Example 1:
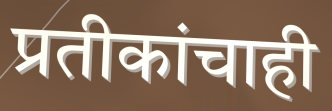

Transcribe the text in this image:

प्रतीकांचाही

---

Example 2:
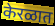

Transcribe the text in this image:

केरळात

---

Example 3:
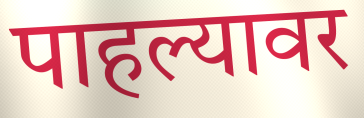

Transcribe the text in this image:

पाहल्यावर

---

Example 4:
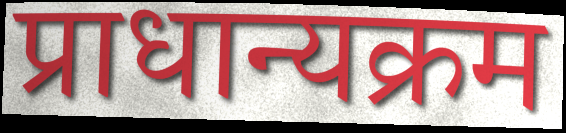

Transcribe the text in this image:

प्राधान्यक्रम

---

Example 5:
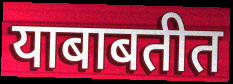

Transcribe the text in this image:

याबाबतीत